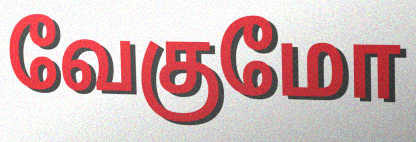
வேகுமோ